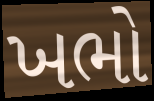
ખભો